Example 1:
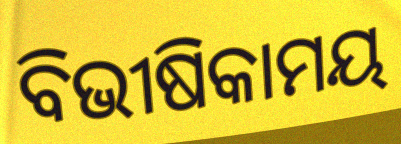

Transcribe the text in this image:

ବିଭୀଷିକାମୟ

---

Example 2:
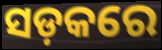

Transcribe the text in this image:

ସଡ଼କରେ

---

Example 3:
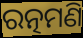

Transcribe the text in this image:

ରତ୍ନମଣି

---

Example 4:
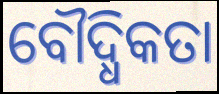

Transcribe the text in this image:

ବୌଦ୍ଧିକତା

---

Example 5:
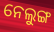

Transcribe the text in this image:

ନେଲୁଙ୍ଗ